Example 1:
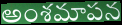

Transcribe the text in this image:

అంశమాపన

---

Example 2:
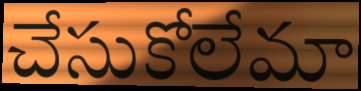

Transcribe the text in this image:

చేసుకోలేమా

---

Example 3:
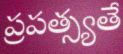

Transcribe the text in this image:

ప్రపత్స్యతే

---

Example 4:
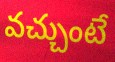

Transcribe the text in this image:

వచ్చుంటే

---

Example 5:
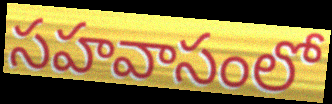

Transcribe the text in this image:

సహవాసంలో